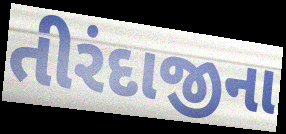
તીરંદાજીના